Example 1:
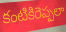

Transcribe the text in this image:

కంటికిరెప్పలా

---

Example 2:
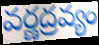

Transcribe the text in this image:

వర్ణద్రవ్యం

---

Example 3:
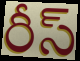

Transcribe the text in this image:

రీస్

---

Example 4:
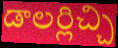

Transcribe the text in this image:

డాలర్లిచ్చి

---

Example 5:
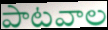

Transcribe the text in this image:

పాటవాల